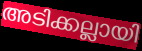
അടിക്കല്ലായി